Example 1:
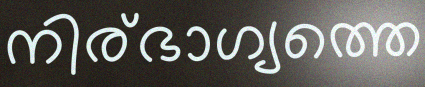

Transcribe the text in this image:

നിര്ഭാഗ്യത്തെ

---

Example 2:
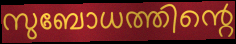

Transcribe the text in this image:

സുബോധത്തിന്റെ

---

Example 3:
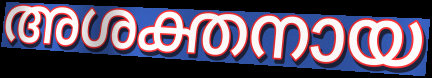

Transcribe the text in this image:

അശക്തനായ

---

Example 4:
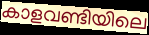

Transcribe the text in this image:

കാളവണ്ടിയിലെ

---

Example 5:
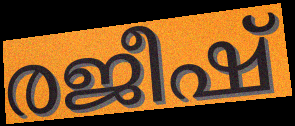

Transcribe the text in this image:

രജീഷ്